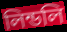
লিন্ডলি